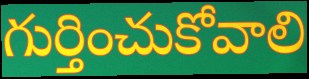
గుర్తించుకోవాలి